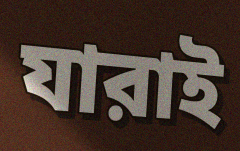
যারাই